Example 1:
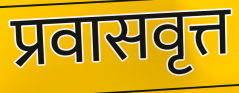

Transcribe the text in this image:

प्रवासवृत्त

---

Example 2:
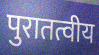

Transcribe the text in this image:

पुरातत्वीय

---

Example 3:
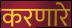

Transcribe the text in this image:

करणारे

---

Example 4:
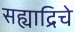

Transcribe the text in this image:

सह्याद्रिचे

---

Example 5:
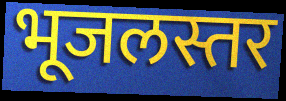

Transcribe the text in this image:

भूजलस्तर